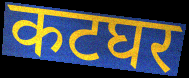
कटघर